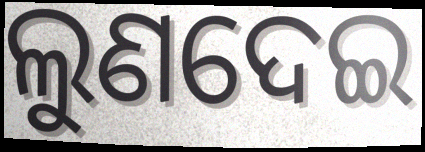
ଲୁଣଦେଇ